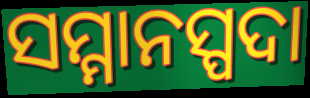
ସମ୍ମାନସ୍ପଦା